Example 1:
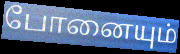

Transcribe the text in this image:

போனையும்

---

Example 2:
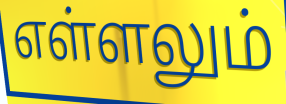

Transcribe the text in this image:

எள்ளலும்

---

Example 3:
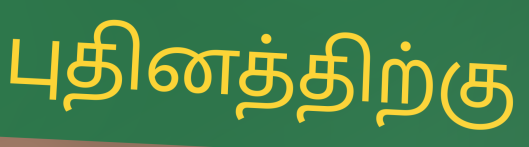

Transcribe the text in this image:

புதினத்திற்கு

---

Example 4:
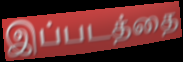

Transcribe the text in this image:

இப்படத்தை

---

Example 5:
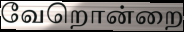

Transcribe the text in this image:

வேறொன்றை